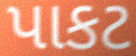
પાકટ